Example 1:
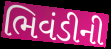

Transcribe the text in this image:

ભિવંડીની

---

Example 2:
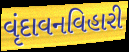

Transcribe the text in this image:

વૃંદાવનવિહારી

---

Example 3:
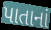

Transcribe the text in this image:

પાતાનાં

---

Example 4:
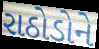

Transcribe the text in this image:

રાઠોડોને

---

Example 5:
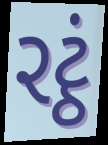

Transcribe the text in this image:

રટ્ઠં